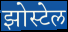
झोस्टेल